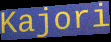
Kajori